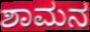
ಶಾಮನ